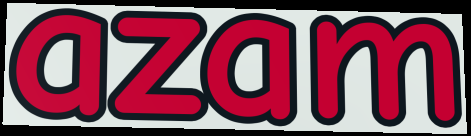
azam